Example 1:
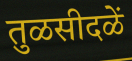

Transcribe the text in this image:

तुळसीदळें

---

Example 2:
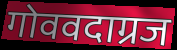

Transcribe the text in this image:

गोववदाग्रज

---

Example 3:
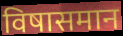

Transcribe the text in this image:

विषासमान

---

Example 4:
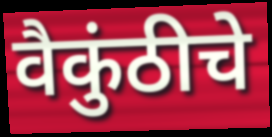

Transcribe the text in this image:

वैकुंठीचे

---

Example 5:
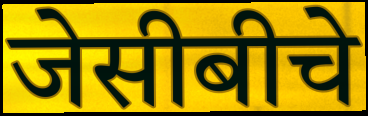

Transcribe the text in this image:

जेसीबीचे